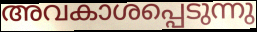
അവകാശപ്പെടുന്നു